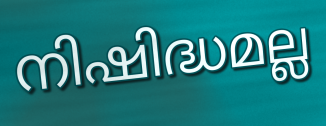
നിഷിദ്ധമല്ല